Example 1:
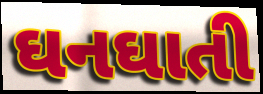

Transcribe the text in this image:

ઘનઘાતી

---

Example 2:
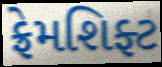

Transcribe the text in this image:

ફ્રેમશિફ્ટ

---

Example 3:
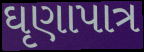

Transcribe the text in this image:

ઘૃણાપાત્ર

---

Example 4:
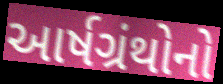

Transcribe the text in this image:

આર્ષગ્રંથોનો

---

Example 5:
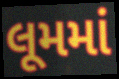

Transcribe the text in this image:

લૂમમાં